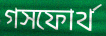
গসফোর্থ